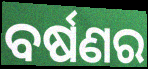
ବର୍ଷଣର